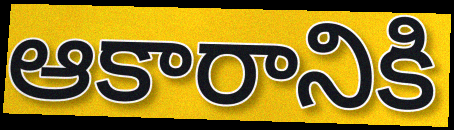
ఆకారానికి